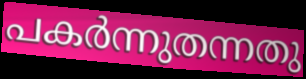
പകർന്നുതന്നതു